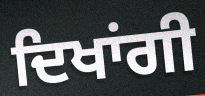
ਦਿਖਾਂਗੀ